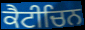
ਕੈਟੀਚਿਨ